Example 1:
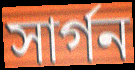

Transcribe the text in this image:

সার্গন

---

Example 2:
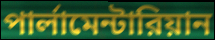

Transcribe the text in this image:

পার্লামেন্টারিয়ান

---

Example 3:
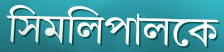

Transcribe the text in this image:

সিমলিপালকে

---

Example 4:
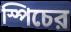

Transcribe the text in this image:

স্পিচের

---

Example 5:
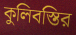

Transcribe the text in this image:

কুলিবস্তির